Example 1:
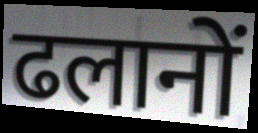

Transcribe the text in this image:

ढलानों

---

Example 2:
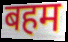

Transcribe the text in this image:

बहम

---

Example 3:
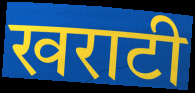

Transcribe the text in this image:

खराटी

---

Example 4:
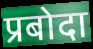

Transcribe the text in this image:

प्रबोदा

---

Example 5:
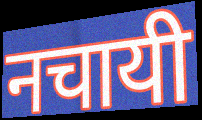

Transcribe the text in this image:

नचायी